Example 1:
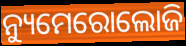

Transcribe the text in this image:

ନ୍ୟୁମେରୋଲୋଜି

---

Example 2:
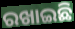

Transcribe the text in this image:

ରଖାଇଛି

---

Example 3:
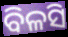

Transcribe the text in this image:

ବିଳସି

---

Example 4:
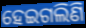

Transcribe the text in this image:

ହେଇଗଲିଣି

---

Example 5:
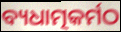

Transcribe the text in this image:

ବ୍ୟଧାତ୍ମକର୍ମଠ